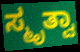
ಸ್ಮೃತ್ವಾ